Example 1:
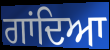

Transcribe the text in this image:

ਗਾਂਦਿਆ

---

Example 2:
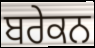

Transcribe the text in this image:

ਬਰੇਕਨ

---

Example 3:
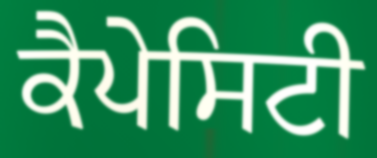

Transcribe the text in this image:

ਕੈਪੇਸਿਟੀ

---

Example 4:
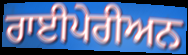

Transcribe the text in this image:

ਰਾਈਪੇਰੀਅਨ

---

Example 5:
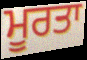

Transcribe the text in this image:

ਮੂਰਤਾ